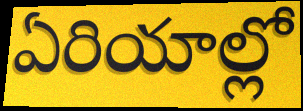
ఏరియాల్లో